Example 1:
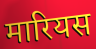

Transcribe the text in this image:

मारियस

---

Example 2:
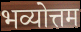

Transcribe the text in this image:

भव्योत्तम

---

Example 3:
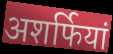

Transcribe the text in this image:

अशर्फियां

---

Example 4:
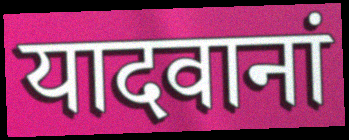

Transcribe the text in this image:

यादवानां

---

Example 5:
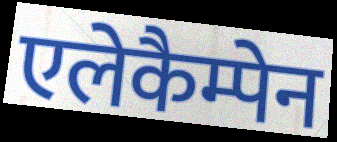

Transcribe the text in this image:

एलेकैम्पेन